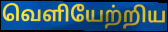
வெளியேற்றிய